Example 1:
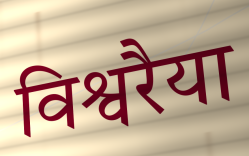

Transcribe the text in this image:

विश्वरैया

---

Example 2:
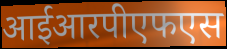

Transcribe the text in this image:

आईआरपीएफएस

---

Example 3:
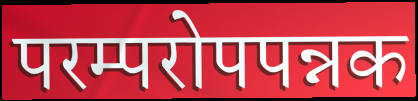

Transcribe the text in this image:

परम्परोपपन्नक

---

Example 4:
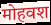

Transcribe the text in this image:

मोहवश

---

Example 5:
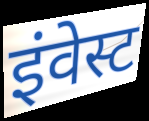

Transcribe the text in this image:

इंवेस्ट